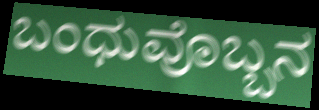
ಬಂಧುವೊಬ್ಬನ